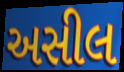
અસીલ